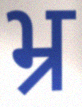
भ्र